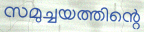
സമുച്ചയത്തിന്റെ